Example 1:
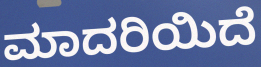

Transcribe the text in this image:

ಮಾದರಿಯಿದೆ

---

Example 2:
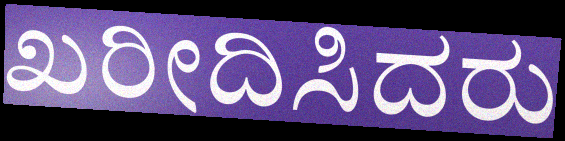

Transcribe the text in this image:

ಖರೀದಿಸಿದರು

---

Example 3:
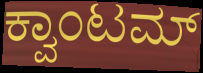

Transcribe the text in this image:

ಕ್ವಾಂಟಮ್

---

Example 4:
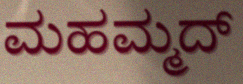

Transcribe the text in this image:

ಮಹಮ್ಮದ್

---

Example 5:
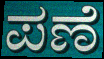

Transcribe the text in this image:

ಪಣೆ